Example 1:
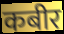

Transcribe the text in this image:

कबीर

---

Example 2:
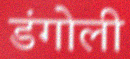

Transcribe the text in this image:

डंगोली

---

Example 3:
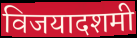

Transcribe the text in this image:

विजयादशमी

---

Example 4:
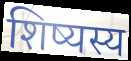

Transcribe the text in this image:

शिष्यस्य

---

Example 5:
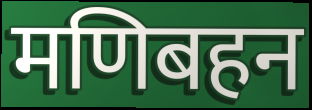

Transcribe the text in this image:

मणिबहन